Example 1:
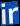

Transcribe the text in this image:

ir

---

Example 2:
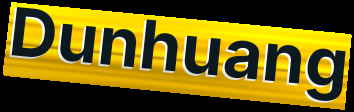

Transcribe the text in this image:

Dunhuang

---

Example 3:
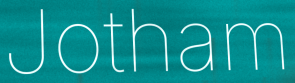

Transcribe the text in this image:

Jotham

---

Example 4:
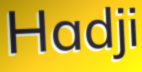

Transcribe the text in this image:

Hadji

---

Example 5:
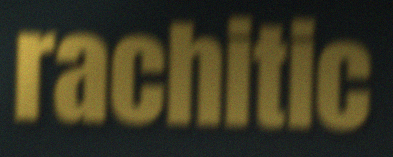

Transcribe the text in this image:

rachitic